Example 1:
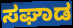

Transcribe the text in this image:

ಸಘಾಡ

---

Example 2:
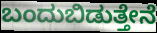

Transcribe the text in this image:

ಬಂದುಬಿಡುತ್ತೇನೆ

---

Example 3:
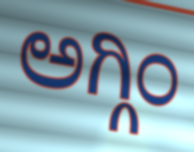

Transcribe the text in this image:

ಅಗ್ಗಿಂ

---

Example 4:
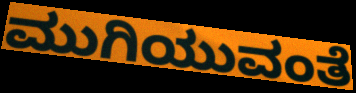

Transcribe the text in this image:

ಮುಗಿಯುವಂತೆ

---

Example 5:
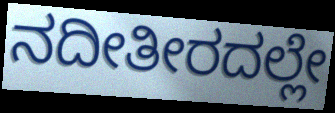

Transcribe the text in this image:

ನದೀತೀರದಲ್ಲೇ